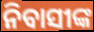
ନିବାସୀଙ୍କ